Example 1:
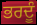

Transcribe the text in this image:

ਭਰਦੂੰ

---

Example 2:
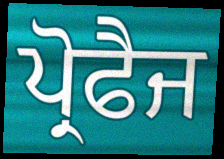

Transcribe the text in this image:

ਪ੍ਰੋਫੈਜ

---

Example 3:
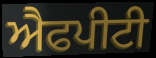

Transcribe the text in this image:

ਐਫਪੀਟੀ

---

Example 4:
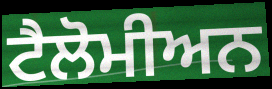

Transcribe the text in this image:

ਟੈਲੋਮੀਅਨ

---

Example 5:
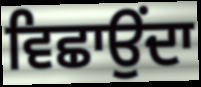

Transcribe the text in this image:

ਵਿਛਾਉਂਦਾ